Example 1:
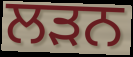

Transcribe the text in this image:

ਲਡ਼ਨ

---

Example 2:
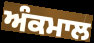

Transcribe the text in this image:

ਅੰਕਮਾਲ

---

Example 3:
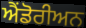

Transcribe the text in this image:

ਐਂਡੋਰੀਅਨ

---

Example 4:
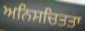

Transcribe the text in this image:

ਅਨਿਸਚਿਤਤਾ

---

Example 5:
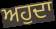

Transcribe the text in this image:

ਅਹੁਦਾ